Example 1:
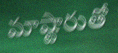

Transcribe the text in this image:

మాష్టారుతో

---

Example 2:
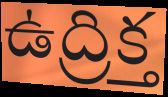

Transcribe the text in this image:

ఉద్రిక్త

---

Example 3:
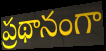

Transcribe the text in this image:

ప్రథానంగా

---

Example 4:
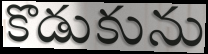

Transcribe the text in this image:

కొడుకును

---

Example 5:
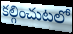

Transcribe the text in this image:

కల్గించుటలో